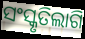
ସଂସ୍କୃତିଲାଗି